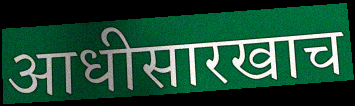
आधीसारखाच